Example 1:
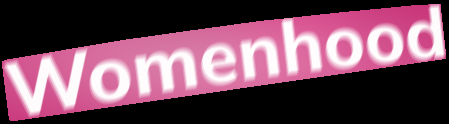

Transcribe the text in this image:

Womenhood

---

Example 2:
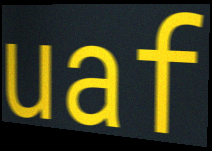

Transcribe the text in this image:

uaf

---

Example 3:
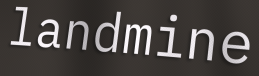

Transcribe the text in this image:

landmine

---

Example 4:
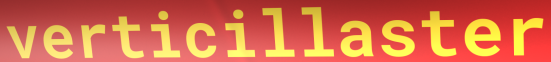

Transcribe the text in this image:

verticillaster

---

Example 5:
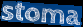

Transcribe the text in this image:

stoma